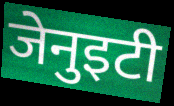
जेनुइटी